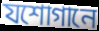
যশোগানে